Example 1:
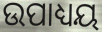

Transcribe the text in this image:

ଉପାଧ୍ୟୟ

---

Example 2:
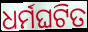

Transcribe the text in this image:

ଧର୍ମଘଟିତ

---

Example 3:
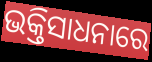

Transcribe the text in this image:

ଭକ୍ତିସାଧନାରେ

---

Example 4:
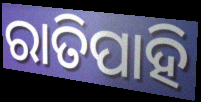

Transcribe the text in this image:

ରାତିପାହି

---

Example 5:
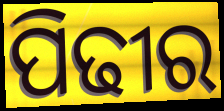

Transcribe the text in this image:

ପିଢୀର